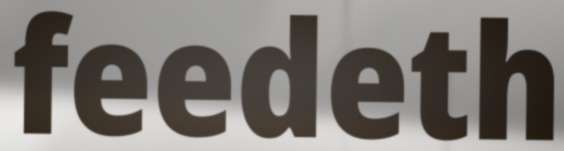
feedeth